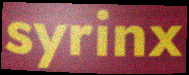
syrinx